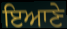
ਇਆਣੇ